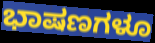
ಭಾಷಣಗಳೂ